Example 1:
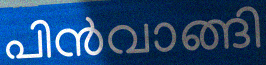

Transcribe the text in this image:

പിൻവാങ്ങി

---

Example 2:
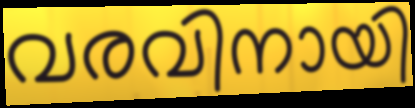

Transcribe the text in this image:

വരവിനായി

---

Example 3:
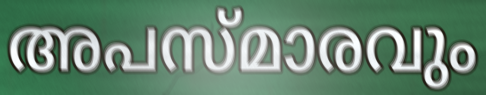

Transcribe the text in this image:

അപസ്മാരവും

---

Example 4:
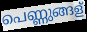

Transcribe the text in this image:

പെണ്ണുങ്ങള്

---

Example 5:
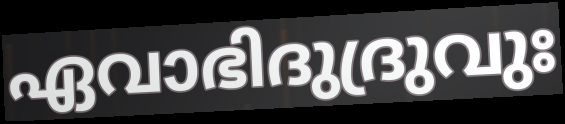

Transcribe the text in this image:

ഏവാഭിദുദ്രുവുഃ